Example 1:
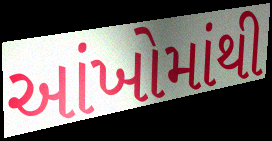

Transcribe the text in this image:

આંખોમાંથી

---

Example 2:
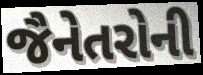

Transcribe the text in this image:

જૈનેતરોની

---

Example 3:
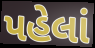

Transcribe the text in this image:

પહેલાં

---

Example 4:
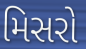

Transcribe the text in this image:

મિસરો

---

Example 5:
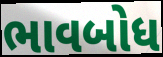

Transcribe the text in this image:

ભાવબોધ